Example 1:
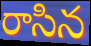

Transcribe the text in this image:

రాసిన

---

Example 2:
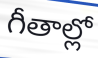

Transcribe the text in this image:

గీతాల్లో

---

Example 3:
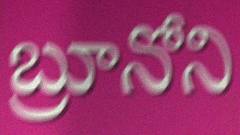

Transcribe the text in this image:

బ్రూనోని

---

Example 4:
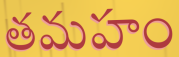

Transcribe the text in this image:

తమహం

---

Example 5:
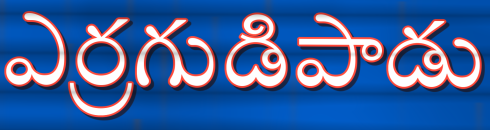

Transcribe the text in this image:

ఎర్రగుడిపాడు